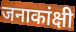
जनाकांक्षी